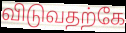
விடுவதற்கே